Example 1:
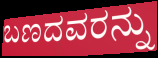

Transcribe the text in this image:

ಬಣದವರನ್ನು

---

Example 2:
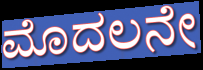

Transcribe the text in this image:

ಮೊದಲನೇ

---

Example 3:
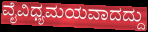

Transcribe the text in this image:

ವೈವಿಧ್ಯಮಯವಾದದ್ದು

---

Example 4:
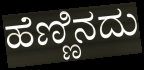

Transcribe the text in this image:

ಹೆಣ್ಣಿನದು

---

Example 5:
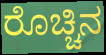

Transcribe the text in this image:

ರೊಚ್ಚಿನ